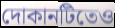
দোকানটিতেও